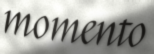
momento